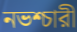
নভশ্চারী